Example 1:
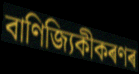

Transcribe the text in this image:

বাণিজ্যিকীকৰণৰ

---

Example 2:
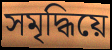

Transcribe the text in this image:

সমৃদ্ধিয়ে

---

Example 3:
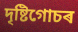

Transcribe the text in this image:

দৃষ্টিগোচৰ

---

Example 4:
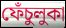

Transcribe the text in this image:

ফেঁচুলুকা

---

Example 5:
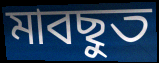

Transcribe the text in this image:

মাবছুত